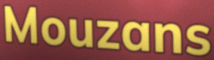
Mouzans